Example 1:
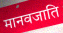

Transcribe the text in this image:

मानवजाति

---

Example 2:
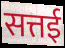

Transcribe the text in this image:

सत्तई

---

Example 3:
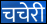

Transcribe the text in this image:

चचेरी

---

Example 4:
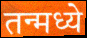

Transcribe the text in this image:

तन्मध्ये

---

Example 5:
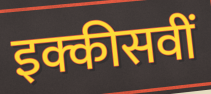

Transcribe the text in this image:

इक्‍कीसवीं